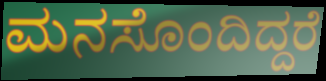
ಮನಸೊಂದಿದ್ದರೆ